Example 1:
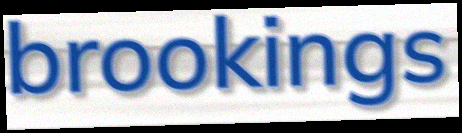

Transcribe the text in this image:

brookings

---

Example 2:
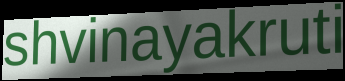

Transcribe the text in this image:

shvinayakruti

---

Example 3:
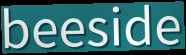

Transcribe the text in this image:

beeside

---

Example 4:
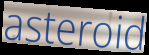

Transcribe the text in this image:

asteroid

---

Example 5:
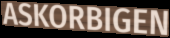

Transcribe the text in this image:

ASKORBIGEN